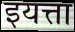
इयत्ता